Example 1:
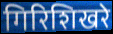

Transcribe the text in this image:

गिरिशिखरे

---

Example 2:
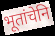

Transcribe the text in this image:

भूतांचेनि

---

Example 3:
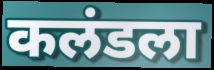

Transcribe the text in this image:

कलंडला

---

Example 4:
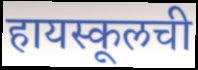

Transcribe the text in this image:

हायस्कूलची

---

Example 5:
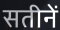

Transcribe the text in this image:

सतीनें